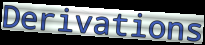
Derivations